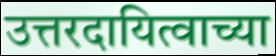
उत्तरदायित्वाच्या